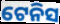
ଟେନିସ